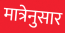
मात्रेनुसार